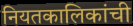
नियतकालिकांची